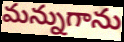
మన్నుగాను